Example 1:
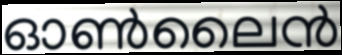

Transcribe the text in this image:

ഓൺലൈൻ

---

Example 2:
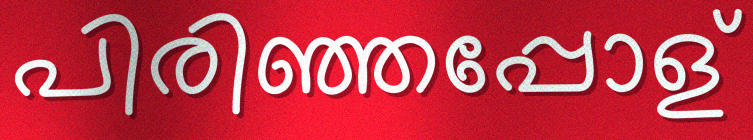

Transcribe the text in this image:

പിരിഞ്ഞപ്പോള്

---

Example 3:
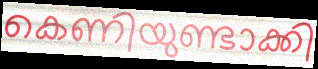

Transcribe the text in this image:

കെണിയുണ്ടാക്കി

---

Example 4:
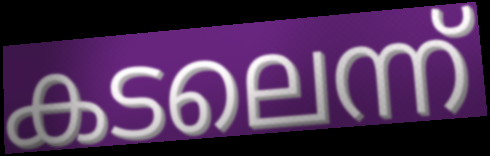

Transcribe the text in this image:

കടലെന്ന്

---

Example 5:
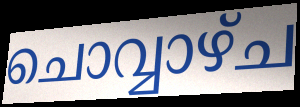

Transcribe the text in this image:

ചൊവ്വാഴ്ച